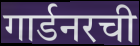
गार्डनरची